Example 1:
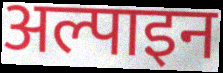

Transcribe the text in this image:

अल्पाइन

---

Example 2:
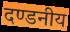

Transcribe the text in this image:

दण्डनीय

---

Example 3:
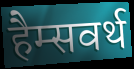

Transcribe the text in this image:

हैम्सवर्थ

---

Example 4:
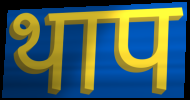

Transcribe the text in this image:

थाप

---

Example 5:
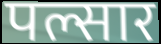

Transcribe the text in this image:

पल्सार